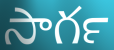
సాగర్‍